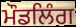
ਮੌਡਲਿੰਗ